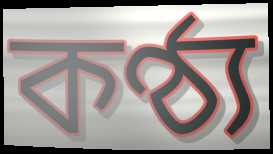
কণ্ঠ্য